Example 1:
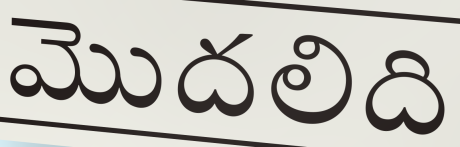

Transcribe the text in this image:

మొదలిది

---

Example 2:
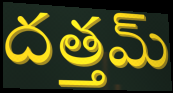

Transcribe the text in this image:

దత్తమ్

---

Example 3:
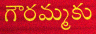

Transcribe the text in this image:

గౌరమ్మకు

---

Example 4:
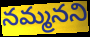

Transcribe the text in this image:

నమ్మనని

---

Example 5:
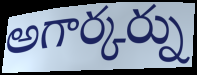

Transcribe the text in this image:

అగార్కర్ను